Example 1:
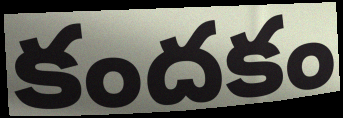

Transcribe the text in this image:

కందకం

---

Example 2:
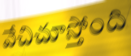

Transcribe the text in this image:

వేచిచూస్తోంది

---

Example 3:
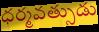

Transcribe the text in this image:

ధర్మవత్సుడు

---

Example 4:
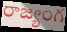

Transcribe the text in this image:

రాజ్యంగ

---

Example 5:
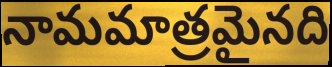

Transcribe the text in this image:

నామమాత్రమైనది